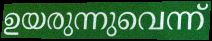
ഉയരുന്നുവെന്ന്